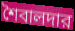
শৈবালদার